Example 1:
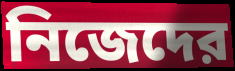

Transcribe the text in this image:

নিজেদের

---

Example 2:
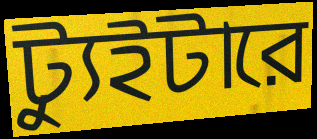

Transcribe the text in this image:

ট্যুইটারে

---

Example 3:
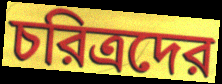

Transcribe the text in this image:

চরিত্রদের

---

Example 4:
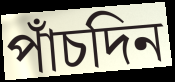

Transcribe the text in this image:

পাঁচদিন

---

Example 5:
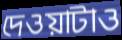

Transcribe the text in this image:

দেওয়াটাও